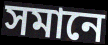
সমানে